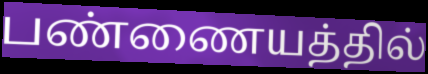
பண்ணையத்தில்